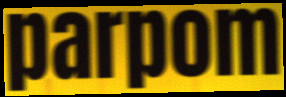
parpom